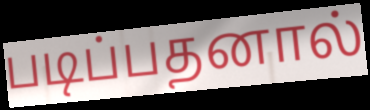
படிப்பதனால்